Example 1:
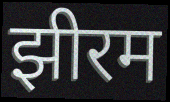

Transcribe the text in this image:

झीरम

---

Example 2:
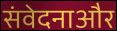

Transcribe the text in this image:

संवेदनाऔर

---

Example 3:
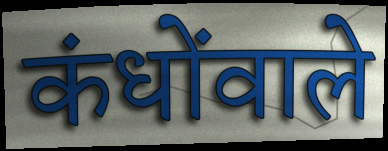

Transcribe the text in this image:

कंधोंवाले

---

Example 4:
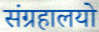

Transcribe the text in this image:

संग्रहालयो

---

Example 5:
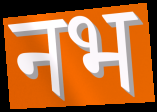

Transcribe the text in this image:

नभ